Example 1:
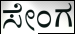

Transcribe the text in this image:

ಸೇಂಗ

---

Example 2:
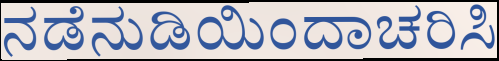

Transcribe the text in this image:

ನಡೆನುಡಿಯಿಂದಾಚರಿಸಿ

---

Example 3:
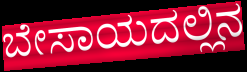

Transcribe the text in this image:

ಬೇಸಾಯದಲ್ಲಿನ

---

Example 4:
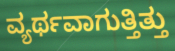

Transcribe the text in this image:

ವ್ಯರ್ಥವಾಗುತ್ತಿತ್ತು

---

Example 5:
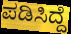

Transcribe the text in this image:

ಪಡಿಸಿದ್ದೆ